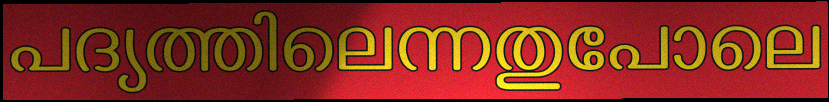
പദ്യത്തിലെന്നതുപോലെ